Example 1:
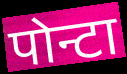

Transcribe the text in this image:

पोन्टा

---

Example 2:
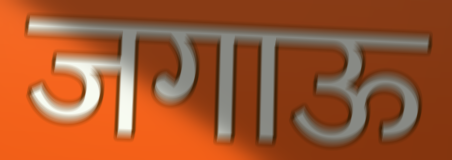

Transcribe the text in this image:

जगाऊ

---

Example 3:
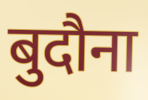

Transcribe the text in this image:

बुदौना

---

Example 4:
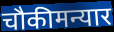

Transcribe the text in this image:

चौकीमन्यार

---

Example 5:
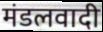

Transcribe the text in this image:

मंडलवादी